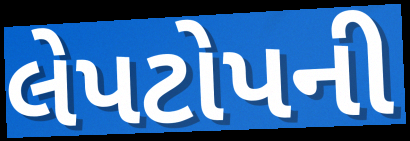
લેપટોપની